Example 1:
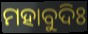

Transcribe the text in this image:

ମହାବୁଦିଃ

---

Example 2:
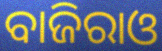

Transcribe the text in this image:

ବାଜିରାଓ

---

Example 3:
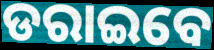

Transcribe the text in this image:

ଡରାଇବେ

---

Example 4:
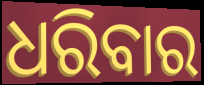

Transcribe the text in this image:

ଧରିବାର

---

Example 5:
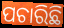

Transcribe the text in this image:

ପଚାରିଛି